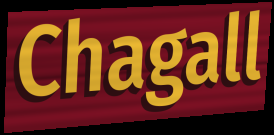
Chagall